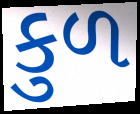
કુળ